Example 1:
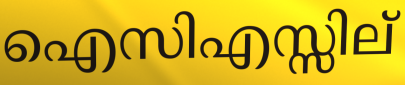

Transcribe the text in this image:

ഐസിഎസ്സില്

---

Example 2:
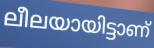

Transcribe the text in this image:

ലീലയായിട്ടാണ്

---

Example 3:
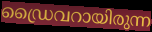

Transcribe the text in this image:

ഡ്രൈവറായിരുന്ന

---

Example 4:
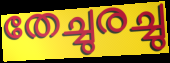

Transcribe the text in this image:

തേച്ചുരച്ചു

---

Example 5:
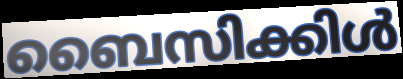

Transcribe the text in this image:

ബൈസിക്കിൾ